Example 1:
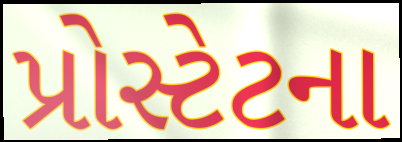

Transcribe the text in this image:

પ્રોસ્ટેટના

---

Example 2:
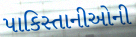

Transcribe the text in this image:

પાકિસ્તાનીઓની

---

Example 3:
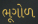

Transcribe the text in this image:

ભૂગોળ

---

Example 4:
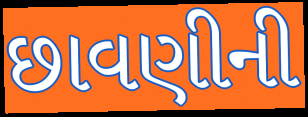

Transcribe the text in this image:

છાવણીની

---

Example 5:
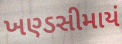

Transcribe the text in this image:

ખણ્ડસીમાયં